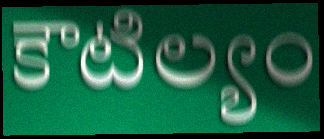
కౌటిల్యం